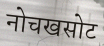
नोचखसोट